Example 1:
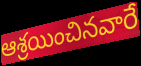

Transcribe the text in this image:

ఆశ్రయించినవారే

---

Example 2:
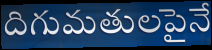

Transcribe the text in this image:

దిగుమతులపైనే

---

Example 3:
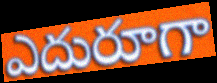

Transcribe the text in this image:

ఎదురూగా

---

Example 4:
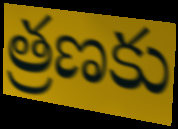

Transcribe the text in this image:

త్రణకు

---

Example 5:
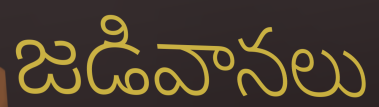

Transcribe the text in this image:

జడివానలు